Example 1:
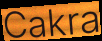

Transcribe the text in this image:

Cakra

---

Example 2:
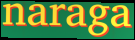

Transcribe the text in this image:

naraga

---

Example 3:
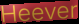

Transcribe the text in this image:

Heever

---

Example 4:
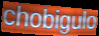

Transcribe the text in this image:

chobigulo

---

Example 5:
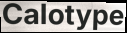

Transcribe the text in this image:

Calotype